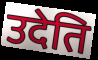
उदेति